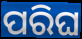
ପରିଘ